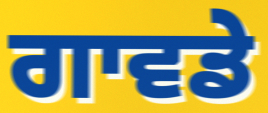
ਗਾਵਡੇ